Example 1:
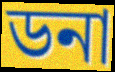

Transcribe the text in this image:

ডনা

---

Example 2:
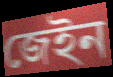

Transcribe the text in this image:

জেইন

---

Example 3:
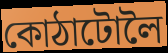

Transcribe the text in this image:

কোঠাটোলৈ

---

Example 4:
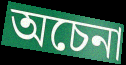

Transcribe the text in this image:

অচেনা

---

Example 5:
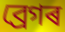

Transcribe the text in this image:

ব্ৰেগৰ